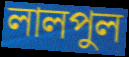
লালপুল